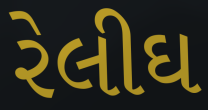
રેલીઘ